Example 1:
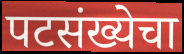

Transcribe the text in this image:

पटसंख्येचा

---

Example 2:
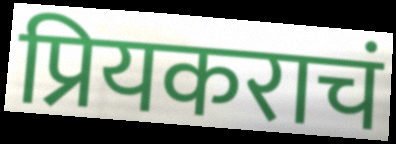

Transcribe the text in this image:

प्रियकराचं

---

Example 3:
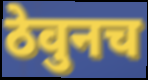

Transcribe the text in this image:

ठेवुनच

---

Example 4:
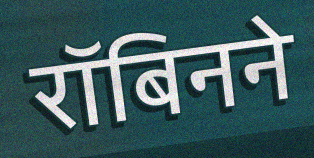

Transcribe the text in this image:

रॉबिनने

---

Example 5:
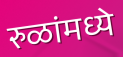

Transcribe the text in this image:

रुळांमध्ये